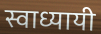
स्वाध्यायी